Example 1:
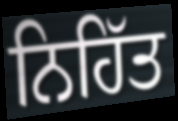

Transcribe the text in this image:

ਨਿਹਿੱਤ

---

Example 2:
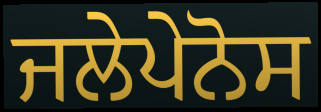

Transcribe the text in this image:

ਜਲੇਪੇਨੋਸ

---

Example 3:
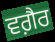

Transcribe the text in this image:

ਵਗ਼ੈਰ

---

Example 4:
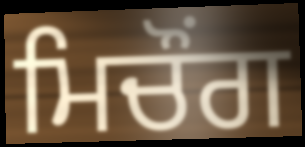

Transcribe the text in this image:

ਮਿਚੌਂਗ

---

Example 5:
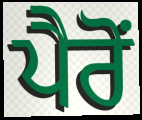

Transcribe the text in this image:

ਪੈਰੋਂ